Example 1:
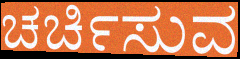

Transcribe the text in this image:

ಚರ್ಚಿಸುವ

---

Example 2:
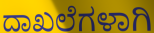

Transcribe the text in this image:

ದಾಖಲೆಗಳಾಗಿ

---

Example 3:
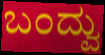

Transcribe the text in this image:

ಬಂದ್ವು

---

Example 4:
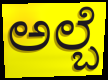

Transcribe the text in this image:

ಅಲ್ಬೆ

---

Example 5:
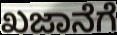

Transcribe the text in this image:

ಖಜಾನೆಗೆ